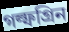
গল্ফগ্রিন